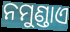
ନମୁଣ୍ଡାଏ